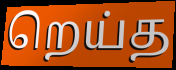
றெய்த